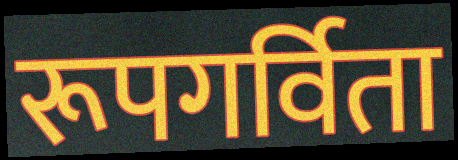
रूपगर्विता